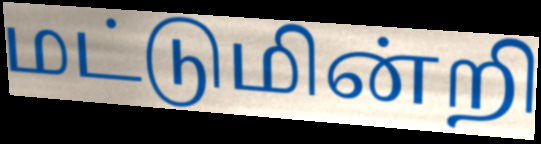
மட்டுமின்றி